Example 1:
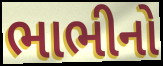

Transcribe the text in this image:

ભાભીનો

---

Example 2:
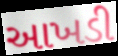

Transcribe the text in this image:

આખડી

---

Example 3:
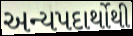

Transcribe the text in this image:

અન્યપદાર્થોથી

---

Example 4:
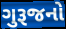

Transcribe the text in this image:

ગુરૂજનો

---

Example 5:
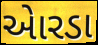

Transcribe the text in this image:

એારડા